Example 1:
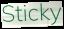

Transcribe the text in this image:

Sticky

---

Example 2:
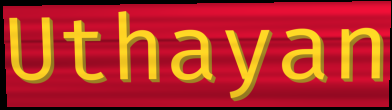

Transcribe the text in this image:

Uthayan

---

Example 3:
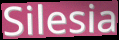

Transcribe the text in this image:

Silesia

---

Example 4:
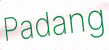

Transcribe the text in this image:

Padang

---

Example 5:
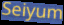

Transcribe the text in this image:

Seiyum